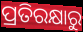
ପ୍ରତିରକ୍ଷାରୁ